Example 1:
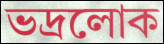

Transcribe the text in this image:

ভদ্ৰলোক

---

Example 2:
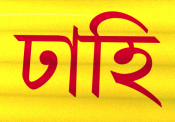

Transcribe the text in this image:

ঢাহি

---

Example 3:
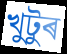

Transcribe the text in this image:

খুটুৰ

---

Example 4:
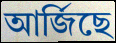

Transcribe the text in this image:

আৰ্জিছে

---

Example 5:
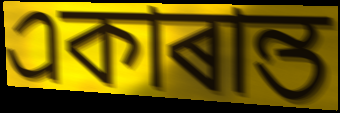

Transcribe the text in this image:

একাৰান্ত